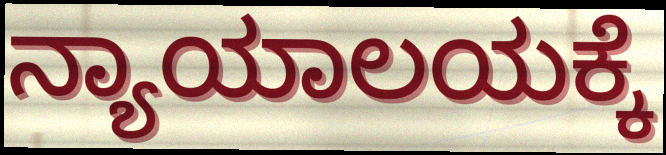
ನ್ಯಾಯಾಲಯಕ್ಕೆ